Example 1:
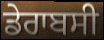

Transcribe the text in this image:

ਡੇਰਾਬਸੀ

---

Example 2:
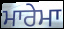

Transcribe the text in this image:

ਮਾਰੇਮਾ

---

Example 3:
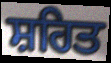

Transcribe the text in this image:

ਸ਼ਹਿਤ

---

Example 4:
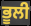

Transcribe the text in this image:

ਭੂਲੀ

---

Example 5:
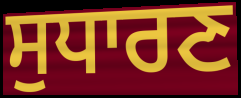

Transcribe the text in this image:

ਸੁਧਾਰਣ